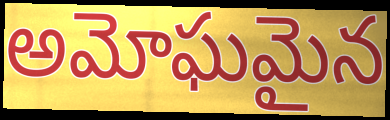
అమోఘమైన